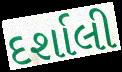
દર્શાલી